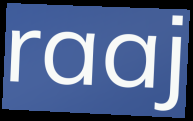
raaj